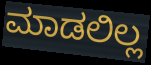
ಮಾಡಲಿಲ್ಲ